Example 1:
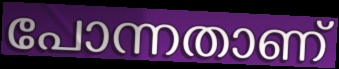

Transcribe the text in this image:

പോന്നതാണ്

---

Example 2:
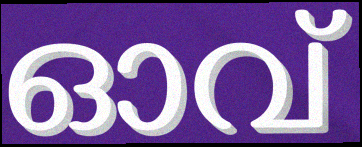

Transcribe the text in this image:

ഓവ്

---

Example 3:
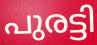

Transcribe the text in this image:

പുരട്ടി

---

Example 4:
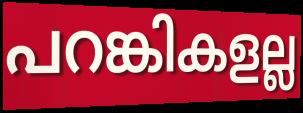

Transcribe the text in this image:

പറങ്കികളല്ല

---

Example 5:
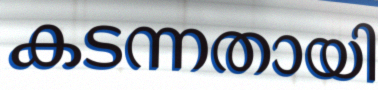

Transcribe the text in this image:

കടന്നതായി